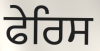
ਫੇਰਿਸ